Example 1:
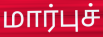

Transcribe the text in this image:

மார்புச்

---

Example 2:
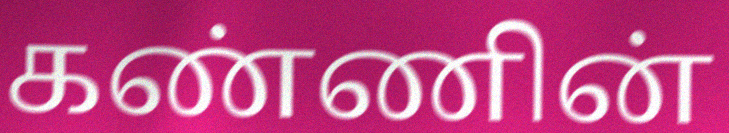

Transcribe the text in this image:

கண்ணின்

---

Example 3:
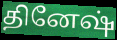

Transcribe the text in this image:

தினேஷ்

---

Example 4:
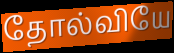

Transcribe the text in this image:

தோல்வியே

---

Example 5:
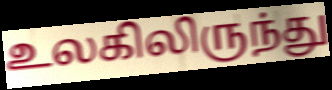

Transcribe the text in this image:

உலகிலிருந்து